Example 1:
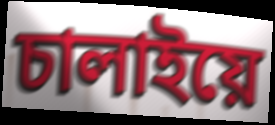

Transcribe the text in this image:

চালাইয়ে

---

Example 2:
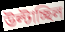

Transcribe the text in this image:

উল্টাচ্ছিল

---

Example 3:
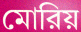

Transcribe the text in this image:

মোরিয়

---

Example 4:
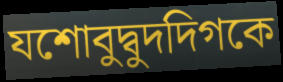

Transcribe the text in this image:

যশোবুদ্বুদদিগকে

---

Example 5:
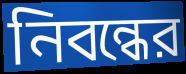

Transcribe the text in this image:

নিবন্ধের